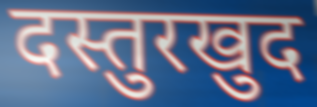
दस्तुरखुद